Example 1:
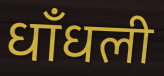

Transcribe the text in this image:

धॉँधली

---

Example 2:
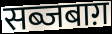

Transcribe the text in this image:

सब्जबाग़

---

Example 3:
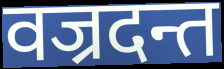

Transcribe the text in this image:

वज्रदन्त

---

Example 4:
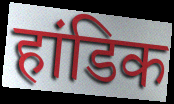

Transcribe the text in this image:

हांडिक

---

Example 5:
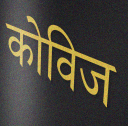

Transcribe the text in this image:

कोविज